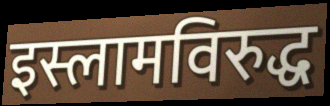
इस्लामविरुद्ध